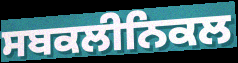
ਸਬਕਲੀਨਿਕਲ